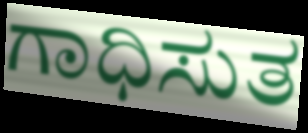
ಗಾಧಿಸುತ